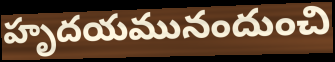
హృదయమునందుంచి